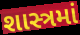
શાસ્ત્રમાં